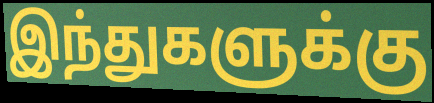
இந்துகளுக்கு